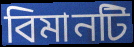
বিমানটি